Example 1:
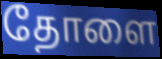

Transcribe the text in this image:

தோளை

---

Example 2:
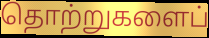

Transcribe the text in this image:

தொற்றுகளைப்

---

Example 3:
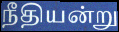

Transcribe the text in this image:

நீதியன்று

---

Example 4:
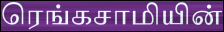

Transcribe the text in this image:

ரெங்கசாமியின்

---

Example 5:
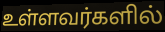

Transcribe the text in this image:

உள்ளவர்களில்